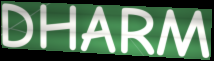
DHARM